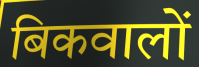
बिकवालों